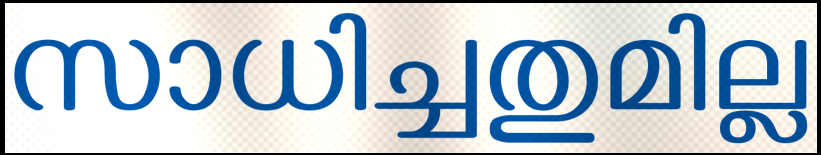
സാധിച്ചതുമില്ല